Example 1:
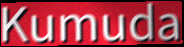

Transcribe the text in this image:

Kumuda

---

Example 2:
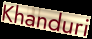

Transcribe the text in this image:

Khanduri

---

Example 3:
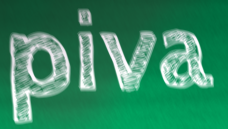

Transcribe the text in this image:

piva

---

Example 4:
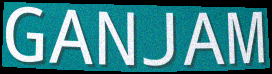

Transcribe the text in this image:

GANJAM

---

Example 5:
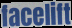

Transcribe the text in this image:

facelift